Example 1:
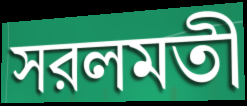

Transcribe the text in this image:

সরলমতী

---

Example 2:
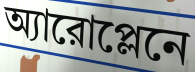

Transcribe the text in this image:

অ্যারোপ্লেনে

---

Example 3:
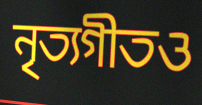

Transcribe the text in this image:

নৃত্যগীতও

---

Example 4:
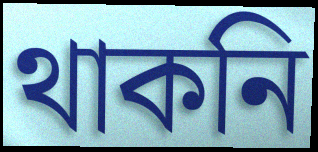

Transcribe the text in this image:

থাকনি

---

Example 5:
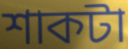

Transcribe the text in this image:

শাকটা